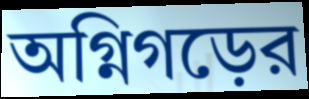
অগ্নিগড়ের